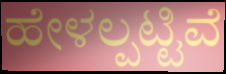
ಹೇಳಲ್ಪಟ್ಟಿವೆ